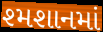
શ્મશાનમાં